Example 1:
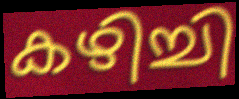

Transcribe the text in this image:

കഴിച്ചി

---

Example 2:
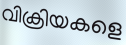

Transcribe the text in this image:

വിക്രിയകളെ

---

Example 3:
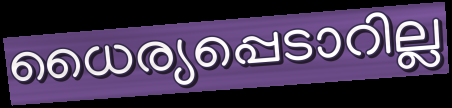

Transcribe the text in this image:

ധൈര്യപ്പെടാറില്ല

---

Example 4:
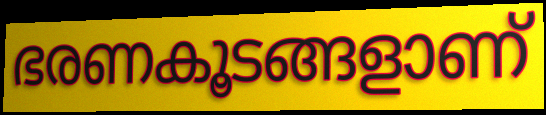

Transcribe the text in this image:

ഭരണകൂടങ്ങളാണ്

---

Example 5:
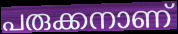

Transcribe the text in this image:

പരുക്കനാണ്